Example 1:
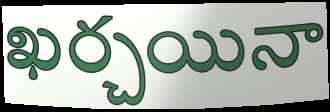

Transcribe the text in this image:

ఖర్చయినా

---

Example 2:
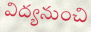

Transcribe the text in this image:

విద్యనుంచి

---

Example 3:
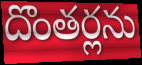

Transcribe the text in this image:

దొంతర్లను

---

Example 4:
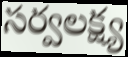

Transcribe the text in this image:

సర్వలక్ష్య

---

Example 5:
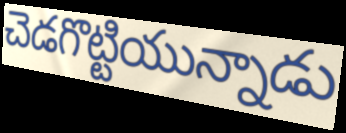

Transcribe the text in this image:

చెడగొట్టియున్నాడు